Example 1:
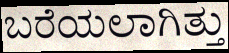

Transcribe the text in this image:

ಬರೆಯಲಾಗಿತ್ತು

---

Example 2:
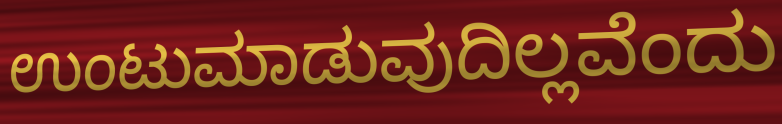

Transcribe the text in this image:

ಉಂಟುಮಾಡುವುದಿಲ್ಲವೆಂದು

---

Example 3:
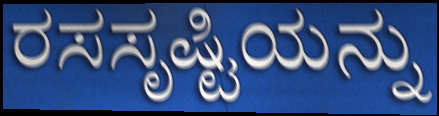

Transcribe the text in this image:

ರಸಸೃಷ್ಟಿಯನ್ನು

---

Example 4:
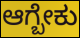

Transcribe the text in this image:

ಆಗ್ಬೇಕು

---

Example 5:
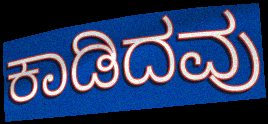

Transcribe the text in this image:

ಕಾಡಿದವು